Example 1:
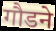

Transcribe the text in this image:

गौडने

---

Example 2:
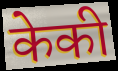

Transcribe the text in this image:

केकी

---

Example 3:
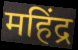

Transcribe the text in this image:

महिंद्र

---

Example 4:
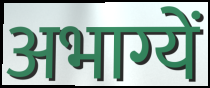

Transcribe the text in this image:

अभाग्यें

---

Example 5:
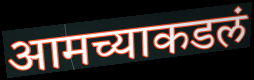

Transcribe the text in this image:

आमच्याकडलं